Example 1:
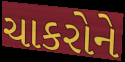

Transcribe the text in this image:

ચાકરોને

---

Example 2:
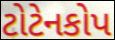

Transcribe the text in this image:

ટોટેનકોપ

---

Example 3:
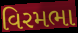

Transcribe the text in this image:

વિરમભા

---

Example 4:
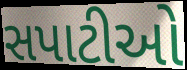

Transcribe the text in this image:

સપાટીઓ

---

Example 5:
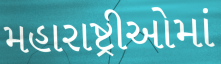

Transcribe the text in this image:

મહારાષ્ટ્રીઓમાં